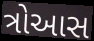
ત્રોઆસ